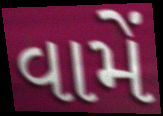
વામેં